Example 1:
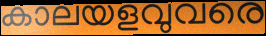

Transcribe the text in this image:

കാലയളവുവരെ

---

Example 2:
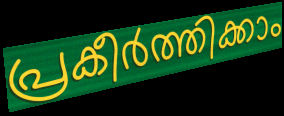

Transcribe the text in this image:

പ്രകീർത്തിക്കാം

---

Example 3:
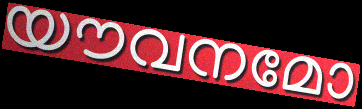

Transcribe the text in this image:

യൗവനമോ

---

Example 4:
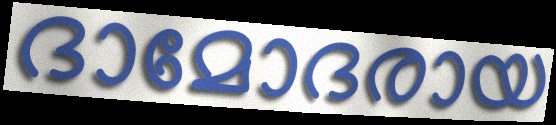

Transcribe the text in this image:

ദാമോദരായ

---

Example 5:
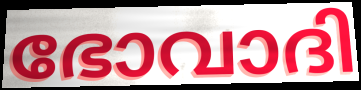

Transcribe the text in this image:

ഭോവാദി